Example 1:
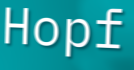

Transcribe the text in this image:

Hopf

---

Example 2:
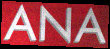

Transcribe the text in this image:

ANA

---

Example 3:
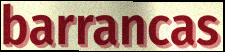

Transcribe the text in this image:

barrancas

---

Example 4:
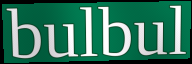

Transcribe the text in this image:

bulbul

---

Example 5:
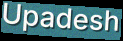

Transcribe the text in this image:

Upadesh